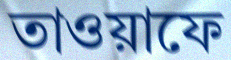
তাওয়াফে